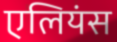
एलियंस